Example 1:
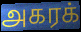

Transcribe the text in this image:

அகரக்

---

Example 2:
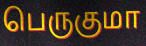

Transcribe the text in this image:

பெருகுமா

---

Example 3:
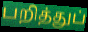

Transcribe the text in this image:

பறித்துப்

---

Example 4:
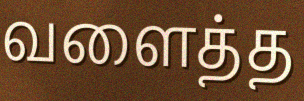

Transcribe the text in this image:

வளைத்த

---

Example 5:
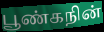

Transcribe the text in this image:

பூண்கநின்